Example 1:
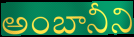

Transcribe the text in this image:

అంబానీని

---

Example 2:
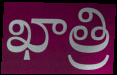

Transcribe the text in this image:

ఖాత్రి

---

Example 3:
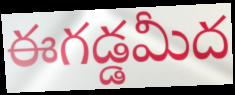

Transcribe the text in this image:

ఈగడ్డమీద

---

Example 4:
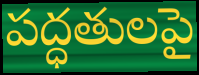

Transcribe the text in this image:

పద్ధతులపై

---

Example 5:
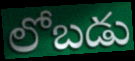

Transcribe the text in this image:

లోబడు